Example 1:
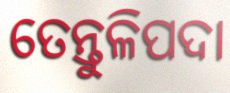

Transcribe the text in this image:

ତେନ୍ତୁଳିପଦା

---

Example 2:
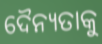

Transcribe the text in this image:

ଦୈନ୍ୟତାକୁ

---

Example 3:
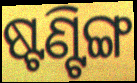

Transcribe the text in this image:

ଷ୍ଟଣ୍ଟିଙ୍ଗ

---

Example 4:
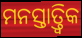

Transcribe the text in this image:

ମନସ୍ତାତ୍ତ୍ୱିକ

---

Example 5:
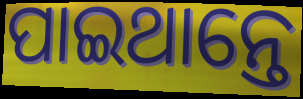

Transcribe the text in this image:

ପାଇଥାନ୍ତେ